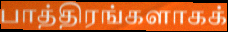
பாத்திரங்களாகக்